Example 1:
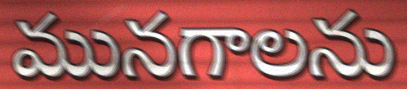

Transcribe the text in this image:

మునగాలను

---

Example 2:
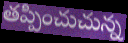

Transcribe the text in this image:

తప్పించుచున్న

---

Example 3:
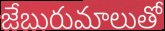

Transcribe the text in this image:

జేబురుమాలుతో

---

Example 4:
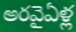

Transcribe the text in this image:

అరవైఏళ్ల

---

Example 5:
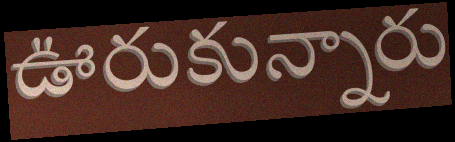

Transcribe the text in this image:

ఊరుకున్నారు